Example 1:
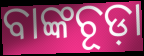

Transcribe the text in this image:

ବାଙ୍କଚୂଡ଼ା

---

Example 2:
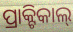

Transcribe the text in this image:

ପ୍ରାକ୍ଟିକାଲ୍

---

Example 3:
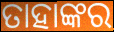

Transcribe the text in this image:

ତାହାଙ୍କର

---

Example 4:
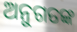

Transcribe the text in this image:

ଅନୁଗତଙ୍କ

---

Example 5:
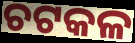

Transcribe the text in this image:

ଚଟକଳ